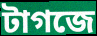
টাগজে